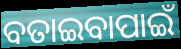
ବତାଇବାପାଇଁ